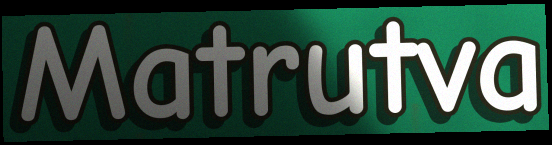
Matrutva